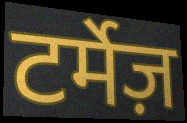
टर्मेज़